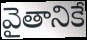
వైతానికే